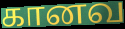
கானவ